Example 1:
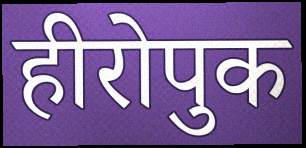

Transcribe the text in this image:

हीरोपुक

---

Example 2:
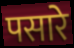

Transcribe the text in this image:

पसारे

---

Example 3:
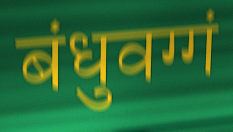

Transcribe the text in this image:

बंधुवग्गं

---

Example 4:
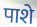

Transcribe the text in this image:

पाशे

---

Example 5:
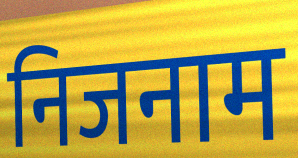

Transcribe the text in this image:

निजनाम